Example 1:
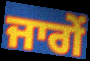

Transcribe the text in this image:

ਜਾਗੇਂ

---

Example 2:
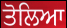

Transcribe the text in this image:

ਤੋਲਿਆ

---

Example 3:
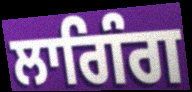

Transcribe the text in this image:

ਲਾਗਿੰਗ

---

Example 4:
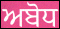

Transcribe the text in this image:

ਅਬੋਧ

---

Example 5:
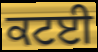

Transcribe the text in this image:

ਕਟਈ